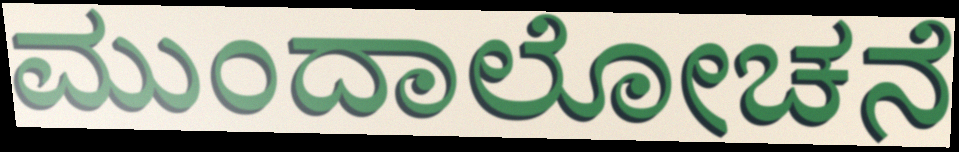
ಮುಂದಾಲೋಚನೆ